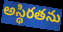
అస్థిరతను